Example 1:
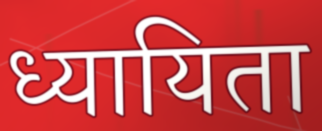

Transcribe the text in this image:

ध्यायिता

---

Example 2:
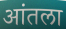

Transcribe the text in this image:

आंतला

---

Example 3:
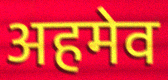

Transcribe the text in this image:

अहमेव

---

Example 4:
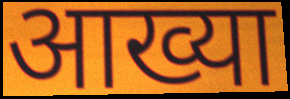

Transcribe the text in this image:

आख्या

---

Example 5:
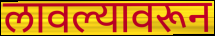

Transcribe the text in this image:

लावल्यावरून